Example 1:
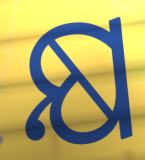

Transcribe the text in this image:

କ୍ଷ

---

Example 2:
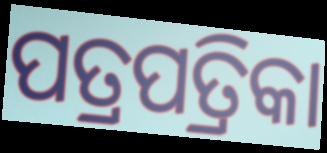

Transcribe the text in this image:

ପତ୍ରପତ୍ରିକା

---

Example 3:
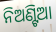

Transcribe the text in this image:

ନିଅଣ୍ଟିଆ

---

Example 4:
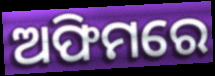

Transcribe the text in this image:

ଅଫିମରେ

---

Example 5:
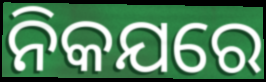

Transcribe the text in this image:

ନିକଯରେ